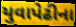
યુવાપેઢીના